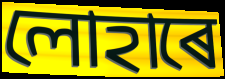
লোহাৰে